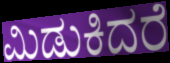
ಮಿಡುಕಿದರೆ